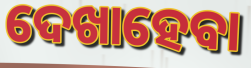
ଦେଖାହେବା